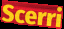
Scerri